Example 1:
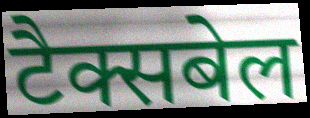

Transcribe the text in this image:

टैक्सबेल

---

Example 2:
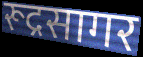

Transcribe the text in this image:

रूद्रसागर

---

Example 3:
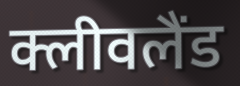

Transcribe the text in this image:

क्लीवलैंड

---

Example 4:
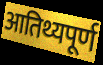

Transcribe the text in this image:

आतिथ्यपूर्ण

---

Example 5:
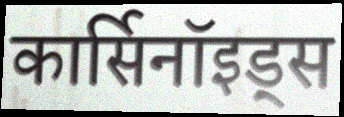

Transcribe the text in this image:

कार्सिनॉइड्स